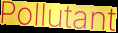
Pollutant